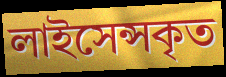
লাইসেন্সকৃত